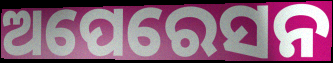
ଅପେରେସନ